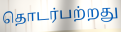
தொடர்பற்றது